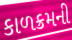
કાળક્રમની